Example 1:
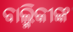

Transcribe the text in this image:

ବାଲ୍ମିକୀଙ୍କ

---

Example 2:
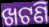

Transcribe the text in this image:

ଖଟଣି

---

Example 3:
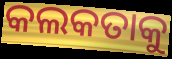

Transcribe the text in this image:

କଲକତାକୁ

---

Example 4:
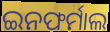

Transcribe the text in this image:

ଇନଫର୍ମାଲ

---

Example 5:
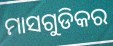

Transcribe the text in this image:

ମାସଗୁଡିକର